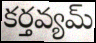
కర్తవ్యమ్